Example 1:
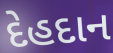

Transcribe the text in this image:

દેહદાન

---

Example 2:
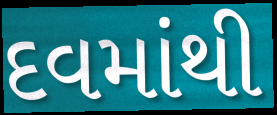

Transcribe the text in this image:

દવમાંથી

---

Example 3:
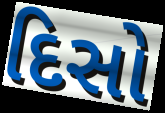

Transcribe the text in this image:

દિસો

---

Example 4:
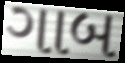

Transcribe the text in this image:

ગાબ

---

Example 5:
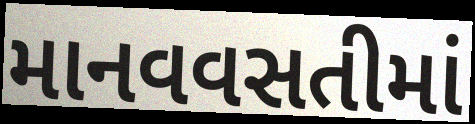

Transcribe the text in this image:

માનવવસતીમાં